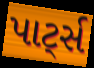
પાર્ટ્સ